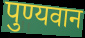
पुण्यवान